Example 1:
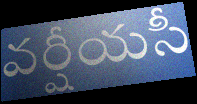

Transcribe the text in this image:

వర్షీయసీ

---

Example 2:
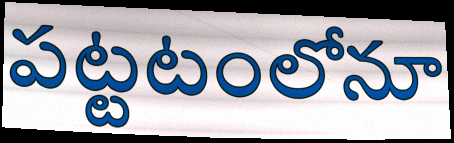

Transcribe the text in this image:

పట్టటంలోనూ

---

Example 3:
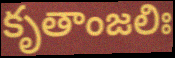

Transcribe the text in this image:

కృతాంజలిః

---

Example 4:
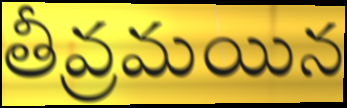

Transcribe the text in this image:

తీవ్రమయిన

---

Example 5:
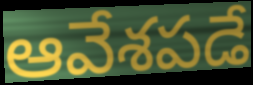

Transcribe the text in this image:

ఆవేశపడే